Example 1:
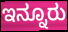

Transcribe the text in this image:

ಇನ್ನೂರು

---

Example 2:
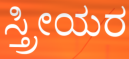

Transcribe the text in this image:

ಸ್ತ್ರೀಯರ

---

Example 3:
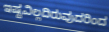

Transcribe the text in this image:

ಇಷ್ಟವಿಲ್ಲದಿರುವುದರಿಂದ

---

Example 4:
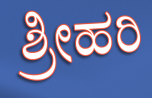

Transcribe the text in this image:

ಶ್ರೀಹರಿ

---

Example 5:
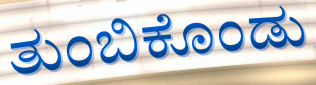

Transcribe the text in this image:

ತುಂಬಿಕೊಂಡು